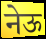
नेऊ